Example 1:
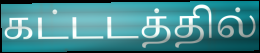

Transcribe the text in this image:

கட்டடத்தில்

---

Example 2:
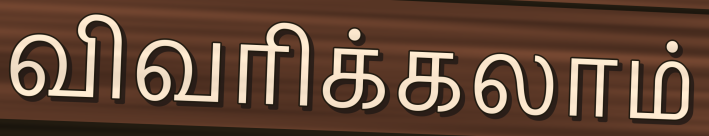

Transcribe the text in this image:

விவரிக்கலாம்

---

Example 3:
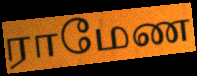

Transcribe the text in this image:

ராமேண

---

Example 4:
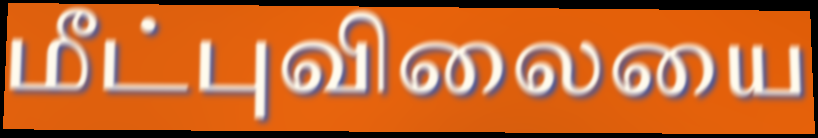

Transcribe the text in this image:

மீட்புவிலையை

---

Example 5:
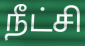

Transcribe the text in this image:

நீட்சி